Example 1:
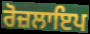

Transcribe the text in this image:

ਰੋਜ਼ਲਾਇਪ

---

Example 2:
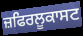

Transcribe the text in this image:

ਜ਼ਫਿਰਲੂਕਾਸਟ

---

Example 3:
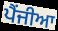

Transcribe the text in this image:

ਪੈਂਜੀਆ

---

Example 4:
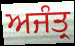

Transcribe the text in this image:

ਅਜੰਤ੍ਰ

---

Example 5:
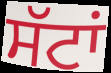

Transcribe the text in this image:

ਸੱਟਾਂ